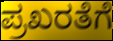
ಪ್ರಖರತೆಗೆ